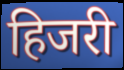
हिजरी